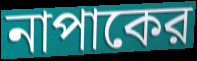
নাপাকের